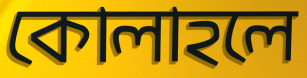
কোলাহলে